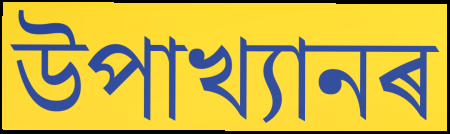
উপাখ্যানৰ